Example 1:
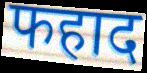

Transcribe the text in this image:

फहाद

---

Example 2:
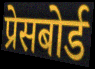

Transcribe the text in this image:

प्रेसबोर्ड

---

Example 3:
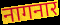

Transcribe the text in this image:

नागनार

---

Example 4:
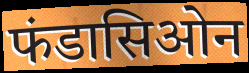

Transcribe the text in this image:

फंडासिओन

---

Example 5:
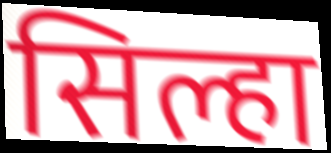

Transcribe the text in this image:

सिल्हा